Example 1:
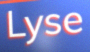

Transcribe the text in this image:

Lyse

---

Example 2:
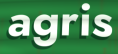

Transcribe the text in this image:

agris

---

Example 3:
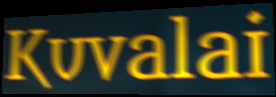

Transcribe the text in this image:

Kuvalai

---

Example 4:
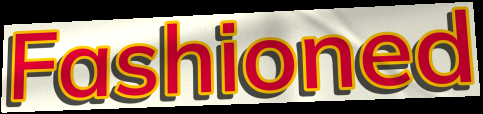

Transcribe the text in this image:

Fashioned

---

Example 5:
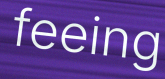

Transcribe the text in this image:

feeing